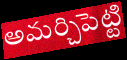
అమర్చిపెట్టి